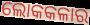
ଲୋକକଳାର